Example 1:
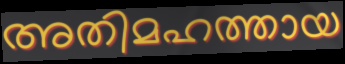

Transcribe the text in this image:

അതിമഹത്തായ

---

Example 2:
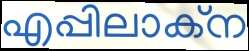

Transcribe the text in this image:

എപ്പിലാക്ന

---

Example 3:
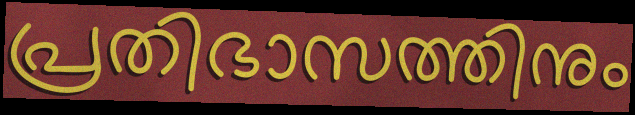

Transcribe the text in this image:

പ്രതിഭാസത്തിനും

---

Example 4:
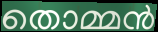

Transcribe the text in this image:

തൊമ്മൻ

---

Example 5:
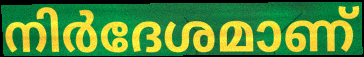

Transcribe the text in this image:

നിർദേശമാണ്